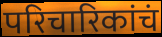
परिचारिकांचं